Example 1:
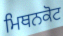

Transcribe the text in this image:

ਮਿਥਨਕੋਟ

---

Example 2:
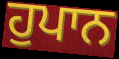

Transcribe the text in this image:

ਹੁਪਾਨ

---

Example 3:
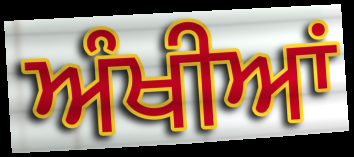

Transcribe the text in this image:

ਅੰਖੀਆਂ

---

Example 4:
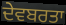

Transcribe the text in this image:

ਦੇਵਬਰਤਾ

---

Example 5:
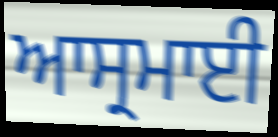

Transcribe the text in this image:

ਆਸ੍ਰਮਾਈ